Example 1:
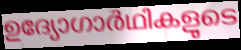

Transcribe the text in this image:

ഉദ്യോഗാർഥികളുടെ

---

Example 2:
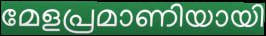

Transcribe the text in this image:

മേളപ്രമാണിയായി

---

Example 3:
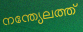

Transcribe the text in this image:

നന്ത്യേലത്ത്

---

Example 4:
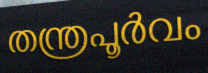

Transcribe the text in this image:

തന്ത്രപൂർവം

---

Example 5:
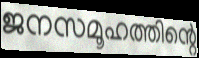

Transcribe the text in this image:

ജനസമൂഹത്തിന്റെ